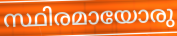
സ്ഥിരമായോരു